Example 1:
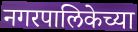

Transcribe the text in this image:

नगरपालिकेच्या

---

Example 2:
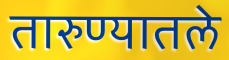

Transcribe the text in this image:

तारुण्यातले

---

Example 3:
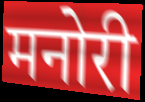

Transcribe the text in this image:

मनोरी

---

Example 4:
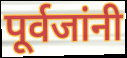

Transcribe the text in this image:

पूर्वजांनी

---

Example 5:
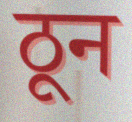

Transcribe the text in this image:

ठून